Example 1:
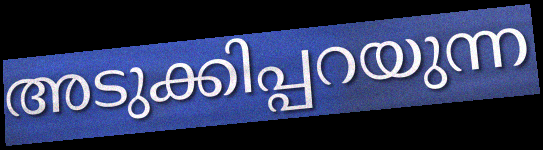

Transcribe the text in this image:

അടുക്കിപ്പറയുന്ന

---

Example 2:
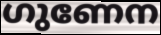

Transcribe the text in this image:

ഗുണേന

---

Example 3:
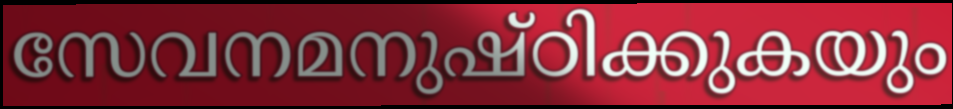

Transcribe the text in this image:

സേവനമനുഷ്ഠിക്കുകയും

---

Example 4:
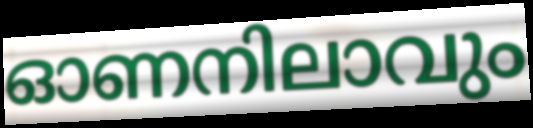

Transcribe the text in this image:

ഓണനിലാവും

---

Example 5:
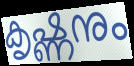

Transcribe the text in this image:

കൃഷ്ണനും